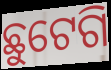
ଛୁଟେଗି